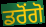
ਡਰੋਂਗੋ